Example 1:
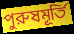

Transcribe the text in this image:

পুরুষমূর্তি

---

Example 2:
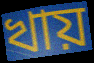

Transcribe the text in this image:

খায়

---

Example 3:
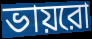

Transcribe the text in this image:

ভায়রো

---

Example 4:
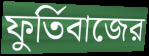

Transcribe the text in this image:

ফুর্তিবাজের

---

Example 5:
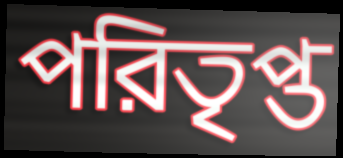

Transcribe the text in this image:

পরিতৃপ্ত